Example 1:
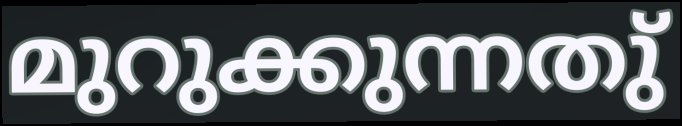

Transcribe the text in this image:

മുറുക്കുന്നതു്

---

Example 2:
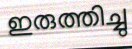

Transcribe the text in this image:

ഇരുത്തിച്ചു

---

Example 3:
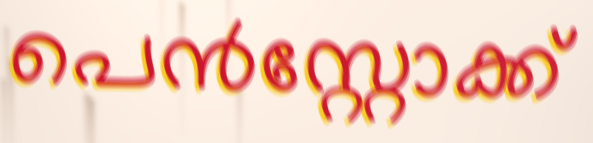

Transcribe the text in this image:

പെൻസ്റ്റോക്ക്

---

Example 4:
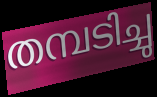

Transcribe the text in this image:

തമ്പടിച്ചു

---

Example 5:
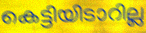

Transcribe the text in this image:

കെട്ടിയിടാറില്ല